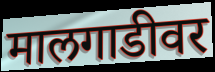
मालगाडीवर